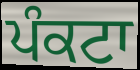
ਪੰਕਟਾ